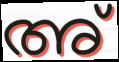
അ്